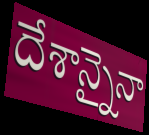
దేశాన్నైనా